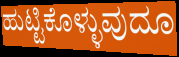
ಹುಟ್ಟಿಕೊಳ್ಳುವುದೂ